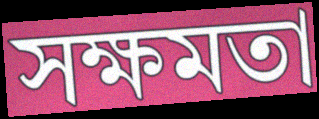
সক্ষমতা